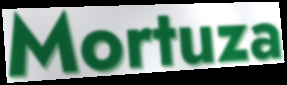
Mortuza